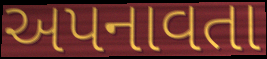
અપનાવતા